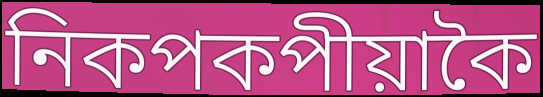
নিকপকপীয়াকৈ